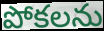
పోకలను